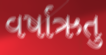
વર્ષાઋતુ